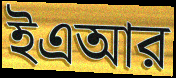
ইএআর